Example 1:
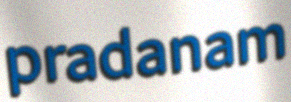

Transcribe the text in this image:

pradanam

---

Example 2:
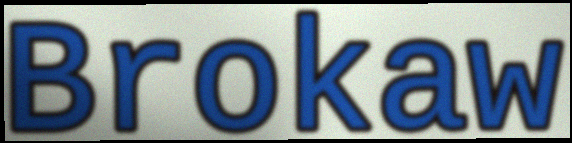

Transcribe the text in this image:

Brokaw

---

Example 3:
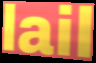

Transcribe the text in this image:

lail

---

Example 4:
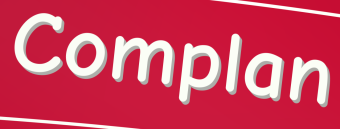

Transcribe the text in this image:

Complan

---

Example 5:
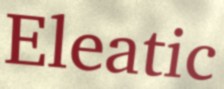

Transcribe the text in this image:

Eleatic